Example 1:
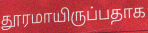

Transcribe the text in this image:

தூரமாயிருப்பதாக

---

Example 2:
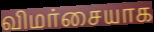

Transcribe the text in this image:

விமர்சையாக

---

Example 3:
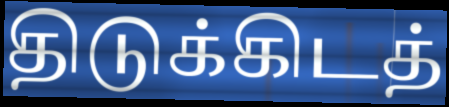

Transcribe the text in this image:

திடுக்கிடத்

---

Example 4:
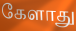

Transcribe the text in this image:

கேளாது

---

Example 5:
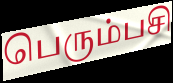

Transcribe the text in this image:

பெரும்பசி